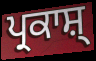
ਪ੍ਰਕਾਸ਼੍